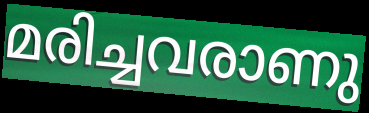
മരിച്ചവരാണു